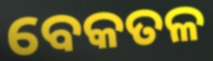
ବେକତଳ